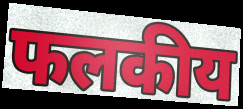
फलकीय